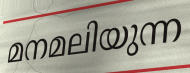
മനമലിയുന്ന